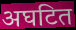
अघटित